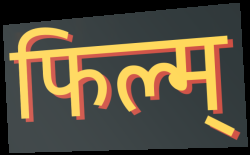
फिल्म्